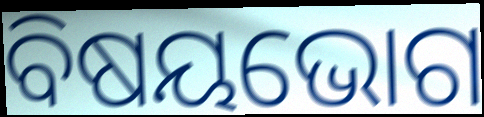
ବିଷୟଭୋଗ